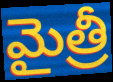
మైత్రీ